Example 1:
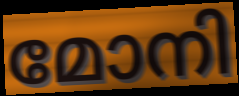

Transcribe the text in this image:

മോനി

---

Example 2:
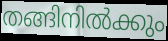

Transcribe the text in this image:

തങ്ങിനിൽക്കും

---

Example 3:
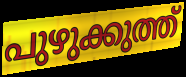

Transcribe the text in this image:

പുഴുക്കുത്ത്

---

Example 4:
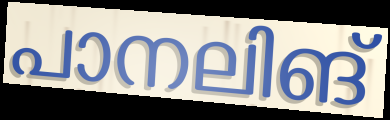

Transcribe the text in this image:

പാനലിങ്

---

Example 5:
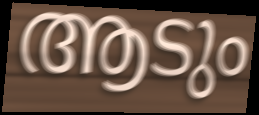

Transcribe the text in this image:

ആടും